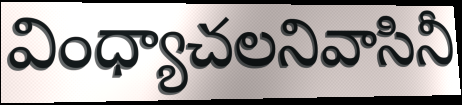
వింధ్యాచలనివాసినీ